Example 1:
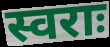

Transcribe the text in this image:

स्वराः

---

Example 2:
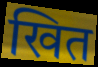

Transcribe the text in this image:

खित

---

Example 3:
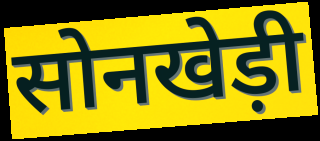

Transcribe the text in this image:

सोनखेड़ी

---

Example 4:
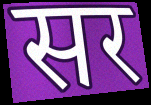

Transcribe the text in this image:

सर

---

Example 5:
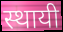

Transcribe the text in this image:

स्थायी